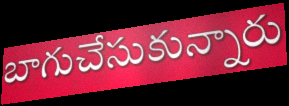
బాగుచేసుకున్నారు